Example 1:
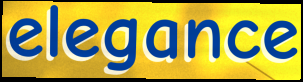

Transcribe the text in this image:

elegance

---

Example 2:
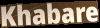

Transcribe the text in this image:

Khabare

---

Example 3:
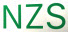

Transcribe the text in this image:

NZS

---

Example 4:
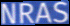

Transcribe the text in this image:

NRAS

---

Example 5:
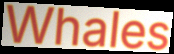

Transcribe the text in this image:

Whales